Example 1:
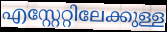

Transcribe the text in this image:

എസ്റ്റേറ്റിലേക്കുള്ള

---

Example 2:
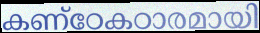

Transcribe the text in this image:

കണ്ഠേകഠാരമായി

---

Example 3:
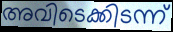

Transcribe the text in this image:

അവിടെക്കിടന്ന്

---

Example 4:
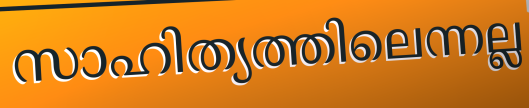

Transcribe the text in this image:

സാഹിത്യത്തിലെന്നല്ല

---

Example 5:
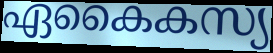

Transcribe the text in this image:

ഏകൈകസ്യ